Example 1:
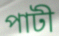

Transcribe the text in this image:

পাটী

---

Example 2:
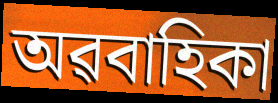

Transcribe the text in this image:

অৱবাহিকা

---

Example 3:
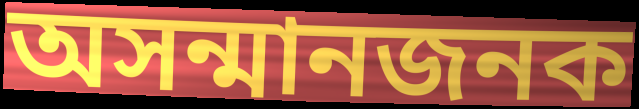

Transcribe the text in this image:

অসন্মানজনক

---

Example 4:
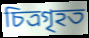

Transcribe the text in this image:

চিত্ৰগৃহত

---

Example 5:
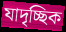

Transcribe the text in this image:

যাদৃচ্ছিক